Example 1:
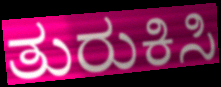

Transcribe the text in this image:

ತುರುಕಿಸಿ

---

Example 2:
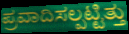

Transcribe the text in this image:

ಪ್ರವಾದಿಸಲ್ಪಟ್ಟಿತ್ತು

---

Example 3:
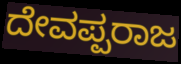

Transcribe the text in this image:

ದೇವಪ್ಪರಾಜ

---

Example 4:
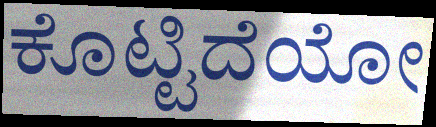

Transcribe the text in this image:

ಕೊಟ್ಟಿದೆಯೋ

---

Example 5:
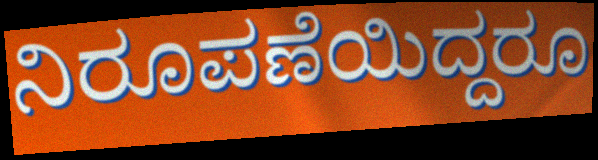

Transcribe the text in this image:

ನಿರೂಪಣೆಯಿದ್ದರೂ